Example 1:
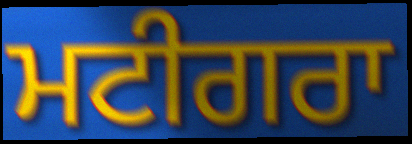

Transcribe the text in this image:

ਮਟੀਗਰਾ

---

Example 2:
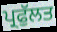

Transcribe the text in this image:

ਪ੍ਰਫੁੱਲਤ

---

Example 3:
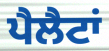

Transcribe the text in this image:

ਪੈਲੈਟਾਂ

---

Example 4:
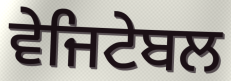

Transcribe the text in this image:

ਵੇਜਿਟੇਬਲ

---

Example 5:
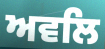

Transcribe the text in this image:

ਅਵਲਿ